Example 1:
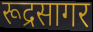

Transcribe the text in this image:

रूद्रसागर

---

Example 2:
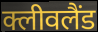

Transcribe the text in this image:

क्लीवलैंड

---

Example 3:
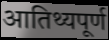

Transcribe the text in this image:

आतिथ्यपूर्ण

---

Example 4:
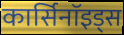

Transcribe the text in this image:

कार्सिनॉइड्स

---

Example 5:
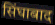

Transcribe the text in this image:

सिंघाबाद